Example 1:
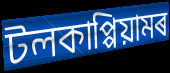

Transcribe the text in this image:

টলকাপ্পিয়ামৰ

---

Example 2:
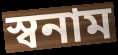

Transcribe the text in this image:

স্বনাম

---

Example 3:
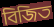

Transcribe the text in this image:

বিজিত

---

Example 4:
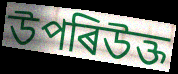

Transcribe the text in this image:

উপৰিউক্ত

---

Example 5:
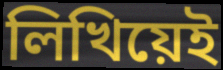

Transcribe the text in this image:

লিখিয়েই